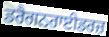
ਡਰੈਗਨਰਾਈਡਰਜ਼